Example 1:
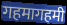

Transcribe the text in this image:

गहमागहमी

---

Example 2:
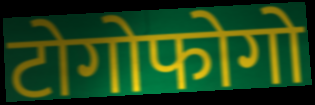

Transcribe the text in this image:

टोगोफोगो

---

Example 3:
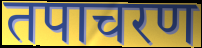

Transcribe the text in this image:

तपाचरण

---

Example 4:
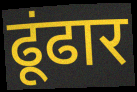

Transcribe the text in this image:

ढूंढार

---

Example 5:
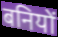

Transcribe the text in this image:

बनियों